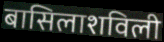
बासिलाशविली